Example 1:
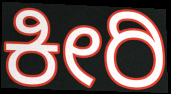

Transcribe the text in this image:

ಕೀರಿ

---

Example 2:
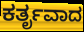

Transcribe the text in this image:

ಕರ್ತೃವಾದ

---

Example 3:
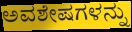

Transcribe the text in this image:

ಅವಶೇಷಗಳನ್ನು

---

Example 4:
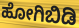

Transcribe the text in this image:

ಹೋಗಿಬಿಡಿ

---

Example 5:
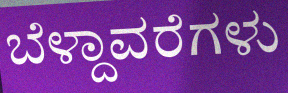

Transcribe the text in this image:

ಬೆಳ್ದಾವರೆಗಳು